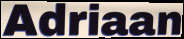
Adriaan